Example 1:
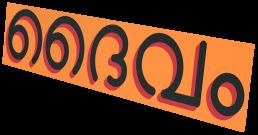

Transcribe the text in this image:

ദൈവം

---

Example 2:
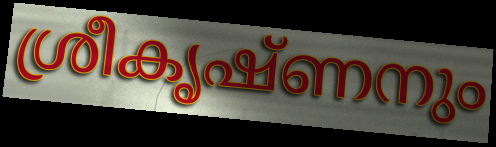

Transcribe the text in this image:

ശ്രീകൃഷ്ണനും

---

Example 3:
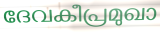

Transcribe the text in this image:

ദേവകീപ്രമുഖാ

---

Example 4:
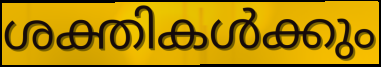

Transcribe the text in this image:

ശക്തികൾക്കും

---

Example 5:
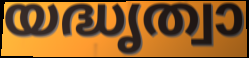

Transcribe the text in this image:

യദ്ധൃത്വാ